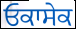
ਓਕਾਸੇਕ